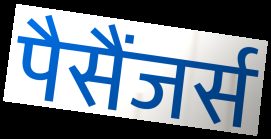
पैसैंजर्स